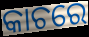
କାଚରେ